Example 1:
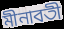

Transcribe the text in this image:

মীনাবতী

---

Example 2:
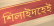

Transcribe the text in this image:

শিলাইদহেই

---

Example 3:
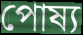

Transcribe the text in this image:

পোষ্য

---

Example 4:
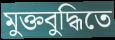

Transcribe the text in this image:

মুক্তবুদ্ধিতে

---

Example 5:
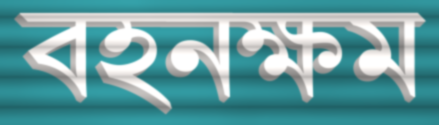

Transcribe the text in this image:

বহনক্ষম